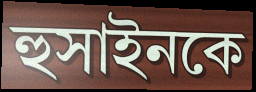
হুসাইনকে